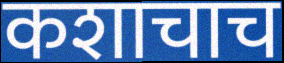
कशाचाच